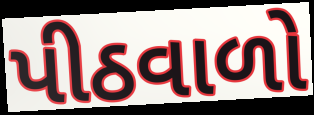
પીઠવાળો